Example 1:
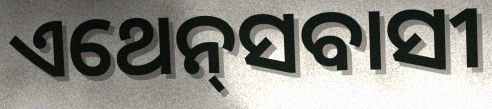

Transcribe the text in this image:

ଏଥେନ୍‌ସବାସୀ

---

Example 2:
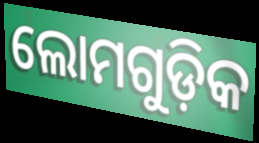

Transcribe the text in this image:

ଲୋମଗୁଡ଼ିକ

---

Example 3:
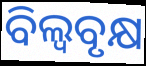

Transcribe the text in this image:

ବିଲ୍ୱବୃକ୍ଷ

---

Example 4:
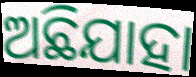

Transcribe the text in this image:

ଅଛିଯାହା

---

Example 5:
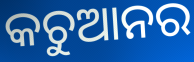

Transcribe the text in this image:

କଚୁଆନର